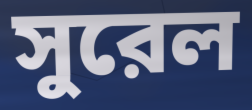
সুরেল